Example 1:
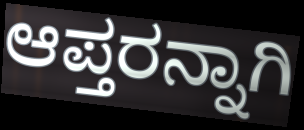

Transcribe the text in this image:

ಆಪ್ತರನ್ನಾಗಿ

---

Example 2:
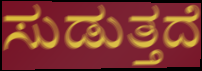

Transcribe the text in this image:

ಸುಡುತ್ತದೆ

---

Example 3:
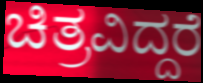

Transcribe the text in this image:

ಚಿತ್ರವಿದ್ದರೆ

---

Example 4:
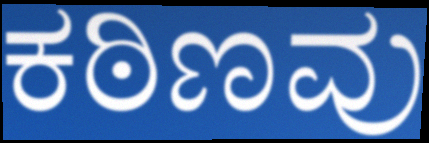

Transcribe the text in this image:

ಕಠಿಣವು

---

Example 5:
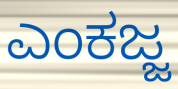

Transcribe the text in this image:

ಎಂಕಜ್ಜ